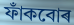
ফাঁকবোৰ